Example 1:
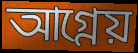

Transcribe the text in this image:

আগ্নেয়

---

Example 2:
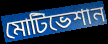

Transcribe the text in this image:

মোটিভেশান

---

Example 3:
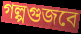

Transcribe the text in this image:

গল্পগুজবে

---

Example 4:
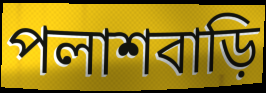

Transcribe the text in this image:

পলাশবাড়ি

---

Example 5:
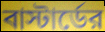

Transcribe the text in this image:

বাস্টার্ডের